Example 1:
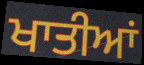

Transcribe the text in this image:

ਖਾਤੀਆਂ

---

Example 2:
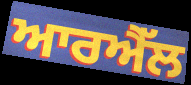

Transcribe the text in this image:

ਆਰਐੱਲ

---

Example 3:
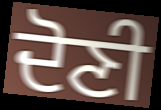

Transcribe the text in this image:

ਦੋਣੀ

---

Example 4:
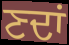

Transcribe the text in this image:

ਣਦਾਂ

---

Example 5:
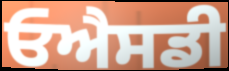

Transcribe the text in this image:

ਓਐਸਡੀ